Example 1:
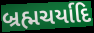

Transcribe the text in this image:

બ્રહ્મચર્યાદિ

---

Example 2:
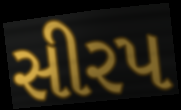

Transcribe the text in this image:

સીરપ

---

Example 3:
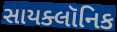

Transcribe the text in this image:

સાયક્લૉનિક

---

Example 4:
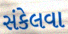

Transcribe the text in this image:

સંકેલવા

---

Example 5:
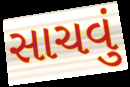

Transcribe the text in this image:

સાચવું